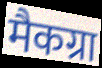
मैकग्रा